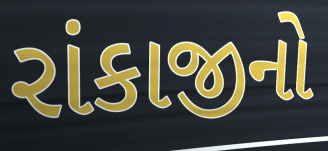
રાંકાજીનો